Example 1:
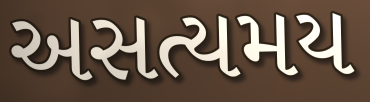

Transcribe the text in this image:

અસત્યમય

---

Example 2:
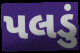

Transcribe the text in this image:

પલડું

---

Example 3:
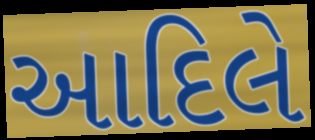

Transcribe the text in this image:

આદિલે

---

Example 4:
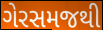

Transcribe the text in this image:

ગેરસમજથી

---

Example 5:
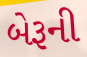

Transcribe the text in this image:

બેરૂની